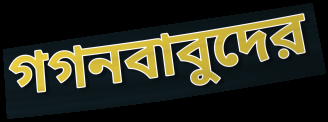
গগনবাবুদের